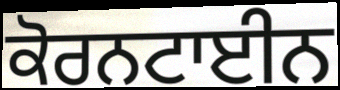
ਕੋਰਨਟਾਈਨ